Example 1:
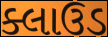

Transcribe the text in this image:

ક્લાઉડ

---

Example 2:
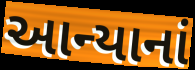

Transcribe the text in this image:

આન્યાનાં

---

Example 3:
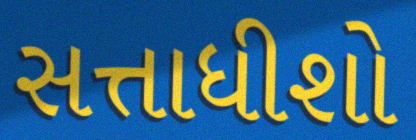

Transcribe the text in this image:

સત્તાધીશો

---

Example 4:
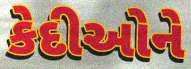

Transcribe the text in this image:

કેદીઓને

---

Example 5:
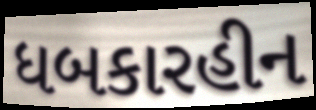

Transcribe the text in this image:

ધબકારહીન